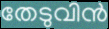
തേടുവിൻ